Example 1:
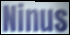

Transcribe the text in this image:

Ninus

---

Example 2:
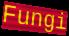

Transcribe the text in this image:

Fungi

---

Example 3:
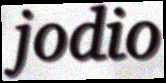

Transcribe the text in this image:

jodio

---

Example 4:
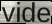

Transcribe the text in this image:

vide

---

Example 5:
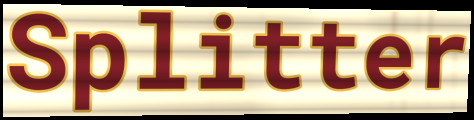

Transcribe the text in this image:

Splitter